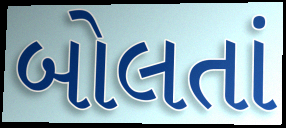
બોલતાં